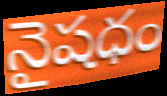
నైషధం